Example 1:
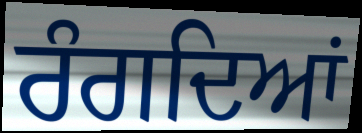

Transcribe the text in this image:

ਰੰਗਦਿਆਂ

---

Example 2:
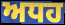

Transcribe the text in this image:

ਅਧਹ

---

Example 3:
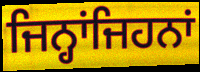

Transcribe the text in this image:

ਜਿਨ੍ਹਾਂਜਿਹਨਾਂ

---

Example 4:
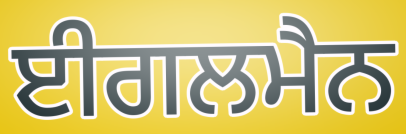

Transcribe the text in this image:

ਈਗਲਮੈਨ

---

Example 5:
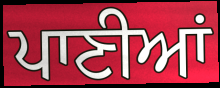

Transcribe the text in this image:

ਪਾਣੀਆਂ